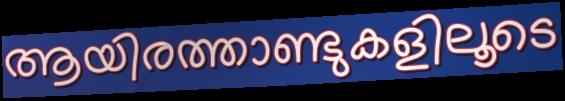
ആയിരത്താണ്ടുകളിലൂടെ